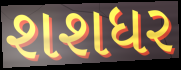
શશધર